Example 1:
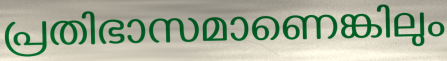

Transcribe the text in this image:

പ്രതിഭാസമാണെങ്കിലും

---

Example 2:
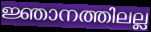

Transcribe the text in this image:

ജ്ഞാനത്തിലല്ല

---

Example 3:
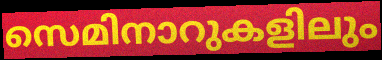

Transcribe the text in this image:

സെമിനാറുകളിലും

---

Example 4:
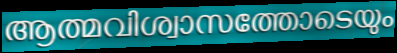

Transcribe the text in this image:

ആത്മവിശ്വാസത്തോടെയും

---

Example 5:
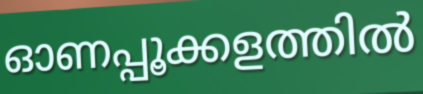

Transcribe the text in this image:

ഓണപ്പൂക്കളത്തിൽ